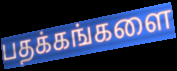
பதக்கங்களை